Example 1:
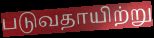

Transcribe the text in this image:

படுவதாயிற்று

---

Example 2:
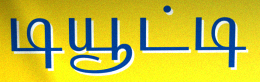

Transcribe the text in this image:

டியூட்டி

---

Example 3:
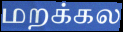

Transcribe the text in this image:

மறக்கல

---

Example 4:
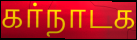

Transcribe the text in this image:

கர்நாடக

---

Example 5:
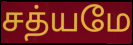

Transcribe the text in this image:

சத்யமே